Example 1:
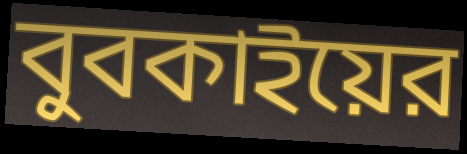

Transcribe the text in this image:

বুবকাইয়ের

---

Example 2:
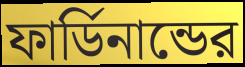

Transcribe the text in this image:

ফার্ডিনান্ডের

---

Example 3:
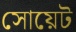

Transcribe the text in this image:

সোয়েট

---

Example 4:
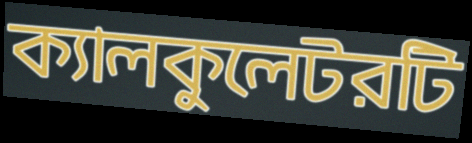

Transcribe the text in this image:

ক্যালকুলেটরটি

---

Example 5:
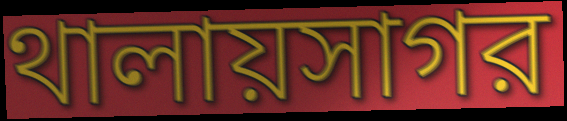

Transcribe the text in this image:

থালায়সাগর